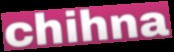
chihna